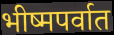
भीष्मपर्वात